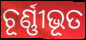
ଚୂର୍ଣ୍ଣୀଭୂତ